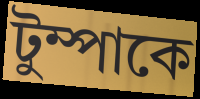
টুম্পাকে